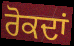
ਰੋਕਦਾਂ